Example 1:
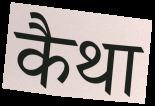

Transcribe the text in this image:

कैथा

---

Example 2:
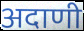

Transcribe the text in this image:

अदाणी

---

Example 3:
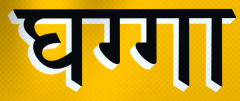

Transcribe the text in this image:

घग्गा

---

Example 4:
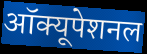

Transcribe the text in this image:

ऑक्यूपेशनल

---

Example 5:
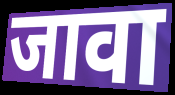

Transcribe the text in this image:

जावा